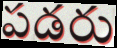
పడరు